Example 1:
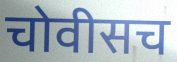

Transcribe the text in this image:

चोवीसच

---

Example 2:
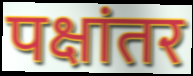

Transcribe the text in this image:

पक्षांतर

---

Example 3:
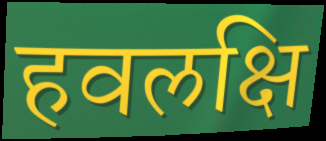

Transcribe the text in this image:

हवलक्षि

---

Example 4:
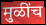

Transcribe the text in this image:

मुळींच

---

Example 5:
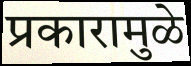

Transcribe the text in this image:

प्रकारामुळे